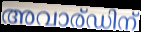
അവാര്ഡിന്